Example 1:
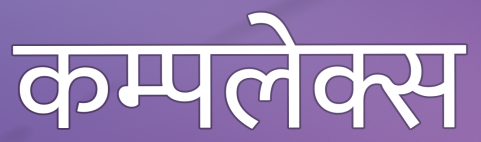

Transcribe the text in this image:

कम्पलेक्स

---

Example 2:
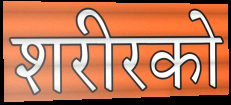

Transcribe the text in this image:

शरीरको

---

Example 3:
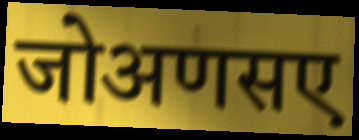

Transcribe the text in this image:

जोअणसए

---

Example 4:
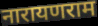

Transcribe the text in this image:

नारायणराम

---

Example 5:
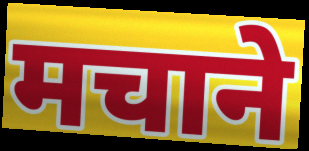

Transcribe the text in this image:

मचाने